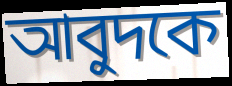
আবুদকে